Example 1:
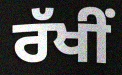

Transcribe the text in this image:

ਰੱਖੀਂ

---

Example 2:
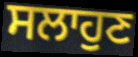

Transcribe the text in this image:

ਸਲਾਹੁਣ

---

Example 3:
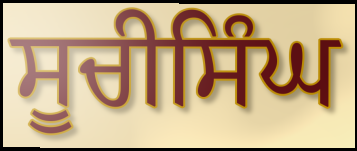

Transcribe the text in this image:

ਸੂਚੀਸਿੰਘ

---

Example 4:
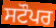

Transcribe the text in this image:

ਸਟੌਪਰ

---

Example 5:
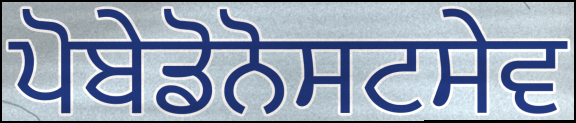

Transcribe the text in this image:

ਪੋਬੇਡੋਨੋਸਟਸੇਵ